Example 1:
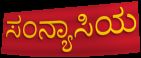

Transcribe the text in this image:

ಸಂನ್ಯಾಸಿಯ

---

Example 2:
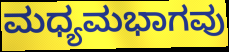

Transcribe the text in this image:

ಮಧ್ಯಮಭಾಗವು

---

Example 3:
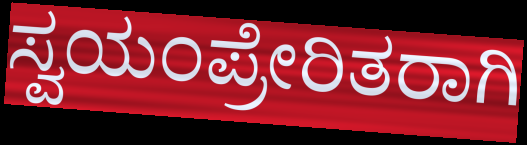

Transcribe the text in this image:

ಸ್ವಯಂಪ್ರೇರಿತರಾಗಿ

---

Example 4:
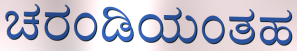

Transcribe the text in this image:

ಚರಂಡಿಯಂತಹ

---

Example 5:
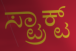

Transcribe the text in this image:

ಸ್ಟ್ರಾಕ್ಟ್